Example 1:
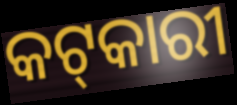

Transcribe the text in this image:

କଟ୍‌କାରୀ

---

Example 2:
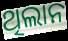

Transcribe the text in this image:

ଥିଲାନ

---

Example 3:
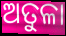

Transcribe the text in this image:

ଅତୁଳା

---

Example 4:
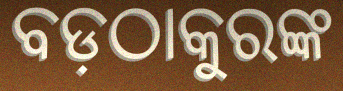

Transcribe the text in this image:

ବଡ଼ଠାକୁରଙ୍କ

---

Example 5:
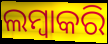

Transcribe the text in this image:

ଲମ୍ବାକରି